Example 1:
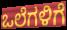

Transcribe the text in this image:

ಒಲೆಗಳಿಗೆ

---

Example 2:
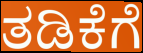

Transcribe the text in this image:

ತಡಿಕೆಗೆ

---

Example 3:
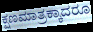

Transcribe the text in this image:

ಕ್ಷಣಮಾತ್ರಕ್ಕಾದರೂ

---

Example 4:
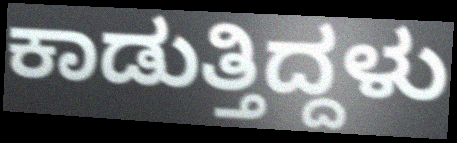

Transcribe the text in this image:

ಕಾಡುತ್ತಿದ್ದಳು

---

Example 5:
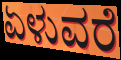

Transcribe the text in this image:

ಏಳುವರೆ